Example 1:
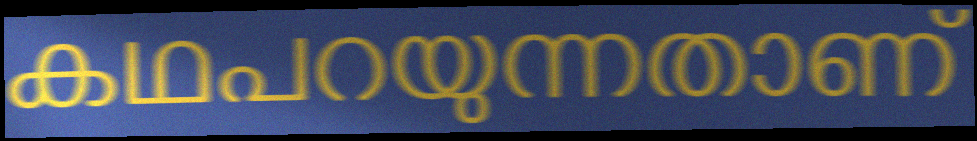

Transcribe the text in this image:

കഥപറയുന്നതാണ്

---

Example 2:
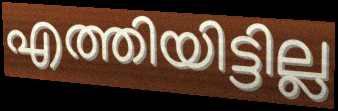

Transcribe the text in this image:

എത്തിയിട്ടില്ല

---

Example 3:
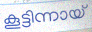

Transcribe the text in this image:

കൂട്ടിന്നായ്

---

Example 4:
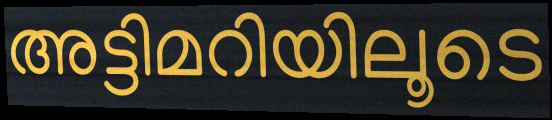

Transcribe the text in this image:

അട്ടിമറിയിലൂടെ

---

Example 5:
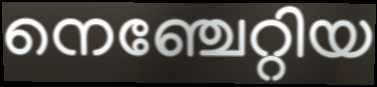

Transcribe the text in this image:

നെഞ്ചേറ്റിയ